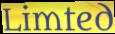
Limted